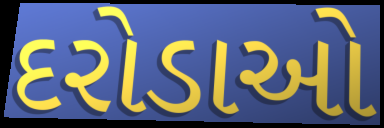
દરોડાઓ